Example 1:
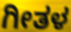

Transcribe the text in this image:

ಗೀತಳ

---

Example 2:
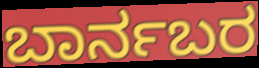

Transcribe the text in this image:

ಬಾರ್ನಬರ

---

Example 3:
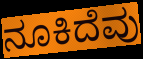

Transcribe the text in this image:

ನೂಕಿದೆವು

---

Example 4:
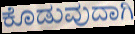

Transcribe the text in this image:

ಕೊಡುವುದಾಗಿ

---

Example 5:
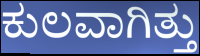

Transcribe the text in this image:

ಕುಲವಾಗಿತ್ತು